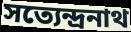
সত্যেন্দ্রনাথ